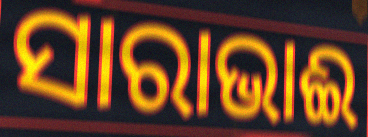
ସାରାଭାଈ